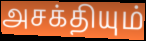
அசக்தியும்